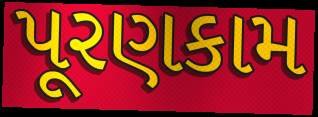
પૂરણકામ